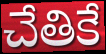
చేతికే